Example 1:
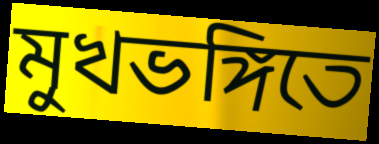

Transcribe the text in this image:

মুখভঙ্গিতে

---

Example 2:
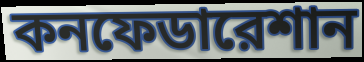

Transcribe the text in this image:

কনফেডারেশান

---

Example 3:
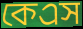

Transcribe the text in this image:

কেএস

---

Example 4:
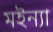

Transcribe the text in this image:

মইন্যা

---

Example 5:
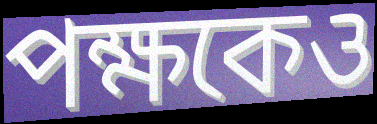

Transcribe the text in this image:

পক্ষকেও